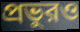
প্রভুরও